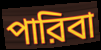
পারিবা